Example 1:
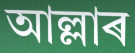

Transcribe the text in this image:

আল্লাৰ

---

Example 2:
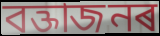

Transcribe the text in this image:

বক্তাজনৰ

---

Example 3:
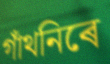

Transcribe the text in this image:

গাঁথনিৰে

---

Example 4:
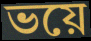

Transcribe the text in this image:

ভয়ে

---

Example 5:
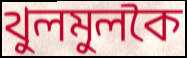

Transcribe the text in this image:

থুলমুলকৈ